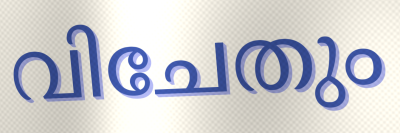
വിചേതും